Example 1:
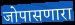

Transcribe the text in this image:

जोपासणारा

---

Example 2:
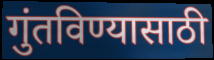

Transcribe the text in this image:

गुंतविण्यासाठी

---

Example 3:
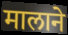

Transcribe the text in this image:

मालाने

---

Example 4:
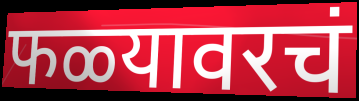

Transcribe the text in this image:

फळ्यावरचं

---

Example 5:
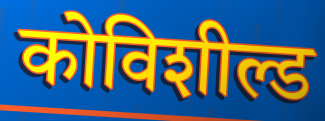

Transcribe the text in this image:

कोविशील्ड